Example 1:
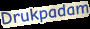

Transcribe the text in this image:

Drukpadam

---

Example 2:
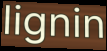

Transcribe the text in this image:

lignin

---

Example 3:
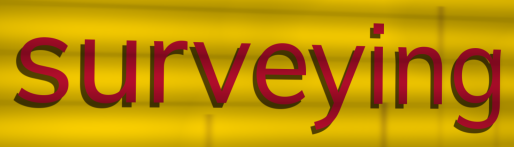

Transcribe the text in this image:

surveying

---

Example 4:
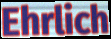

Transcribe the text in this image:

Ehrlich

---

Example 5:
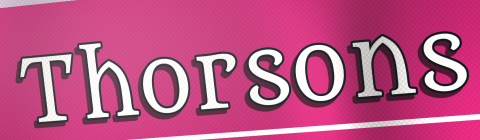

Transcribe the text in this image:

Thorsons